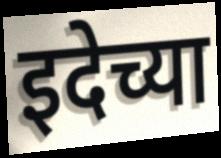
इदेच्या